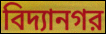
বিদ্যানগর